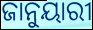
ଜାନୁୟାରୀ